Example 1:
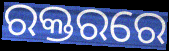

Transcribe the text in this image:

ରକ୍ତରରେ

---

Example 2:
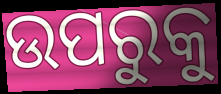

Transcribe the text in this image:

ଉପରୁକୁ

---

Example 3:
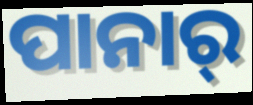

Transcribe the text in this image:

ପାନାର୍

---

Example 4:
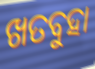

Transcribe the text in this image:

ଖତବୁହା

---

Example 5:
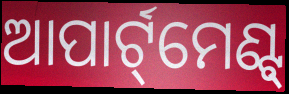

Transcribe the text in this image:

ଆପାର୍ଟ୍‌ମେଣ୍ଟ୍